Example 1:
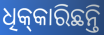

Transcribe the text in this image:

ଧିକ୍‌କାରିଛନ୍ତି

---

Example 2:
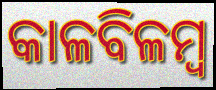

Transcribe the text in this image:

କାଳବିଳମ୍ବ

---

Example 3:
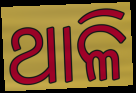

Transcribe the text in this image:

ଥାଳି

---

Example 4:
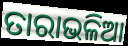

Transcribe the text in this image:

ତାରାଭଳିଆ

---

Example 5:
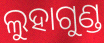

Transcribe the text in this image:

ଲୁହାଗୁଣ୍ଡ